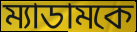
ম্যাডামকে